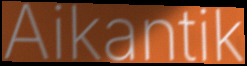
Aikantik